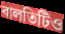
বালতিটিও